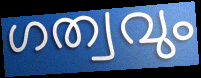
ഗത്വവും